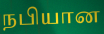
நபியான